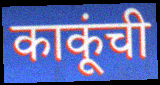
काकूंची